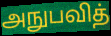
அநுபவித்